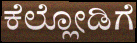
ಕೆಲ್ಲೋಡಿಗೆ